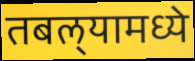
तबल्यामध्ये